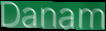
Danam